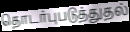
தொடர்புபடுத்துதல்